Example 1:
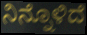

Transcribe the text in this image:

ನಿನ್ನೊಳಿದೆ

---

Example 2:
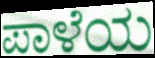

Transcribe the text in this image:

ಪಾಳೆಯ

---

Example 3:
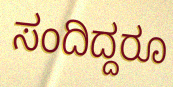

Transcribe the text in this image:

ಸಂದಿದ್ದರೂ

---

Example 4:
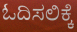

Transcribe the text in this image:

ಓದಿಸಲಿಕ್ಕೆ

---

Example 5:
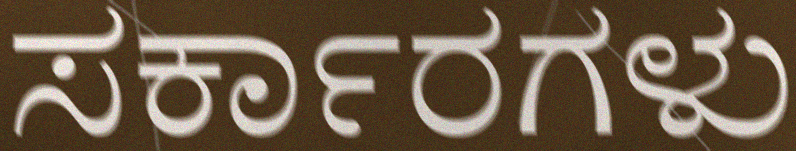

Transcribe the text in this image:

ಸರ್ಕಾರಗಳು